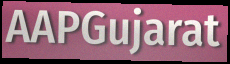
AAPGujarat